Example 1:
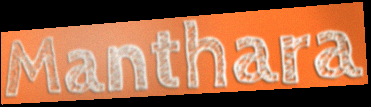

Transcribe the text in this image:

Manthara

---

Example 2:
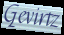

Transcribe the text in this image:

Gevirtz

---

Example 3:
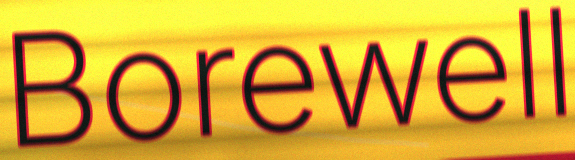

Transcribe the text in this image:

Borewell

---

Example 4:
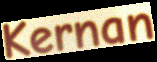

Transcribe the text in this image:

Kernan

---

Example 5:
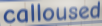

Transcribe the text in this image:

calloused